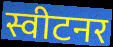
स्वीटनर